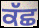
ਕੱਛ